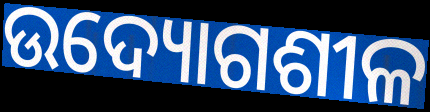
ଉଦ୍ୟୋଗଶୀଳ